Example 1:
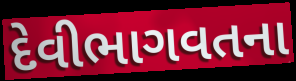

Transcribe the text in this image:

દેવીભાગવતના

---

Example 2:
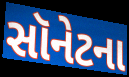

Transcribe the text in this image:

સૉનેટના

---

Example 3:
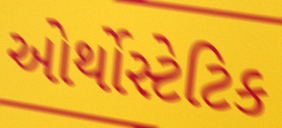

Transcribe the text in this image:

ઓર્થોસ્ટેટિક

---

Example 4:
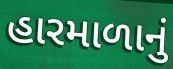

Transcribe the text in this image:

હારમાળાનું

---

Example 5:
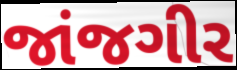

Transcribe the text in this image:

જાંજગીર